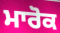
ਮਾਰੋਕ